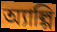
অ্যাল্গি